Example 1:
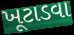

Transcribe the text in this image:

ખૂટાડવા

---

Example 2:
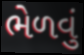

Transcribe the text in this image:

ભેળવું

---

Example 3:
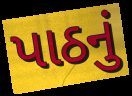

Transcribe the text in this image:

પાઠનું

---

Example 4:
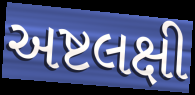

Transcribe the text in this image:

અષ્ટલક્ષી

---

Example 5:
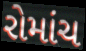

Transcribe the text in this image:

રોમાંચ